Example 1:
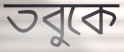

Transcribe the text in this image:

তবুকে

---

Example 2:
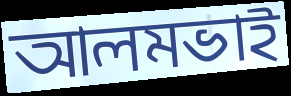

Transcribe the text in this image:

আলমভাই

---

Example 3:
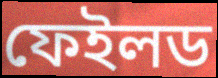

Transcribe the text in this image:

ফেইলড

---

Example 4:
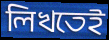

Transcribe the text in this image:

লিখতেই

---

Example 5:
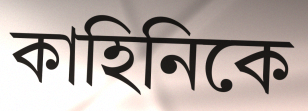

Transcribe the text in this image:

কাহিনিকে